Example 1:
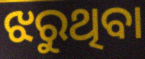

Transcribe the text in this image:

ଝରୁଥିବା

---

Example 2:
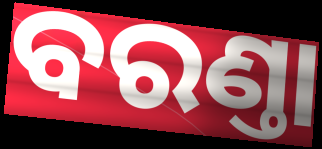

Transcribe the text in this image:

ବରଣ୍ତା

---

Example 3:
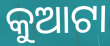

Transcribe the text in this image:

କୁଆଟା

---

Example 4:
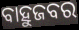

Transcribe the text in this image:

ବାହୁଜବର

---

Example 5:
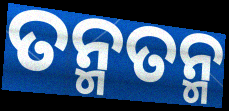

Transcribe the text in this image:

ତନ୍ମତନ୍ମ